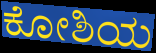
ಕೋಶಿಯ